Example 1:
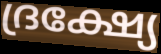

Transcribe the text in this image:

ദ്രക്ഷ്യേ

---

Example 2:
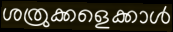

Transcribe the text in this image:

ശത്രുക്കളെക്കാൾ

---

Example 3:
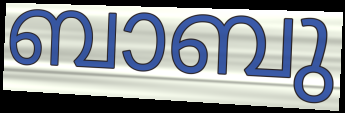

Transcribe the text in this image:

ബാബു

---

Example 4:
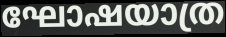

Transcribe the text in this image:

ഘോഷയാത്ര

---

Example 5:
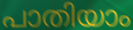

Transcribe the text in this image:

പാതിയാം